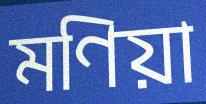
মণিয়া